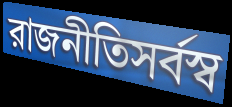
রাজনীতিসর্বস্ব